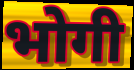
भोगी